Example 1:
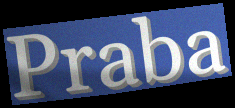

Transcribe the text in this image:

Praba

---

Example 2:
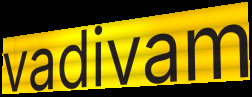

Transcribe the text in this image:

vadivam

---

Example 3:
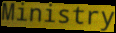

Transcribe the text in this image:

Ministry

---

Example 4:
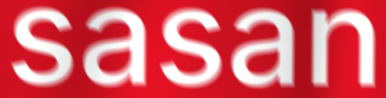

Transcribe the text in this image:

sasan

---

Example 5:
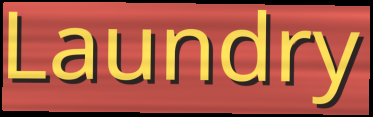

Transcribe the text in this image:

Laundry